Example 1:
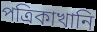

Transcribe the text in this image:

পত্রিকাখানি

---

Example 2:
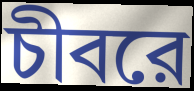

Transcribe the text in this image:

চীবরে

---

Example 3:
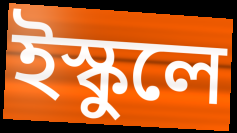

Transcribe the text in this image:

ইস্কুলে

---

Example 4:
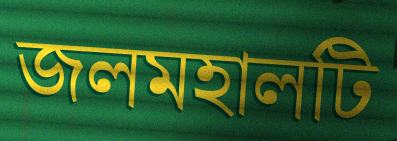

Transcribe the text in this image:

জলমহালটি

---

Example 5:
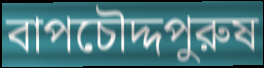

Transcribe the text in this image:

বাপচৌদ্দপুরুষ